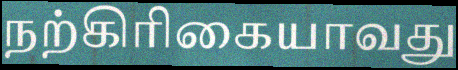
நற்கிரிகையாவது